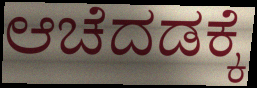
ಆಚೆದಡಕ್ಕೆ